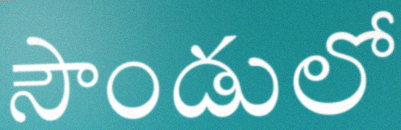
సౌండులో